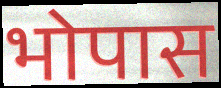
भोपास